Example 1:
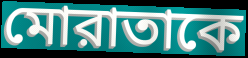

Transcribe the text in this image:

মোরাতাকে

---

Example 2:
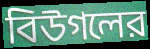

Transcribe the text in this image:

বিউগলের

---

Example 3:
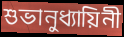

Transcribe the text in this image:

শুভানুধ্যায়িনী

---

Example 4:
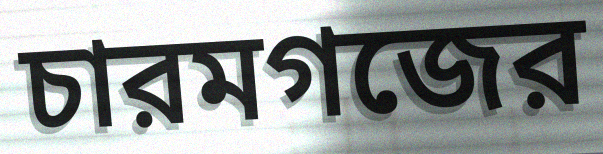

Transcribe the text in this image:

চারমগজের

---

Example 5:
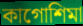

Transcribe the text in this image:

কাগোশিমা